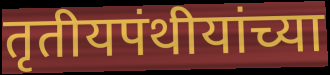
तृतीयपंथीयांच्या